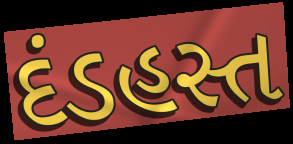
દંડહસ્ત